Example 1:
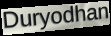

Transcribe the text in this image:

Duryodhan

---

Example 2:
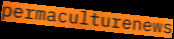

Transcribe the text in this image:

permaculturenews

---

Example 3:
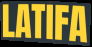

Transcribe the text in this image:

LATIFA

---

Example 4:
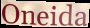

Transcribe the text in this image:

Oneida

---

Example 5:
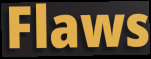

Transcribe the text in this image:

Flaws